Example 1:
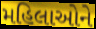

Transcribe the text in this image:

મહિલાઓને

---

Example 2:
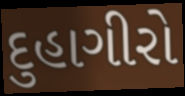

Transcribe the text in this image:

દુહાગીરો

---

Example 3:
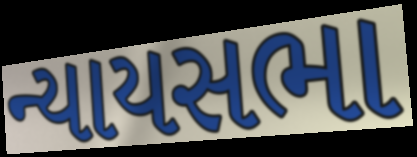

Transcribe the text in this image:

ન્યાયસભા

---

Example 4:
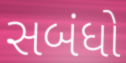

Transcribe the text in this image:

સબંધો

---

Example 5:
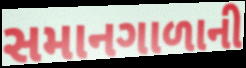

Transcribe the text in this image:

સમાનગાળાની